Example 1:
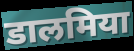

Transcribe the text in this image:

डालमिया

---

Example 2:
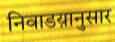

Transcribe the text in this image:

निवाडय़ानुसार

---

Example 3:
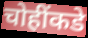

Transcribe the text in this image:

चोहींकडे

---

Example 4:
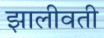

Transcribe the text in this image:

झालीवती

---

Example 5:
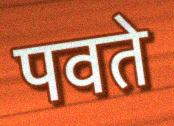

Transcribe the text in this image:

पवते